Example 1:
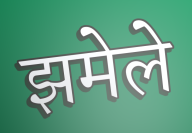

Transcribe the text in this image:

झमेले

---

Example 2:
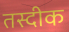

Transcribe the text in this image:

तस्दीक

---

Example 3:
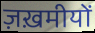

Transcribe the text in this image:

ज़ख़मीयों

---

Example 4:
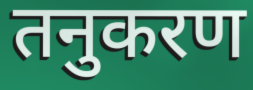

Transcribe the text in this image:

तनुकरण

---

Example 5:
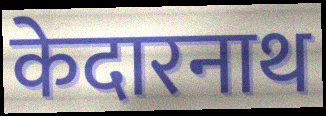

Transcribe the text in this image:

केदारनाथ